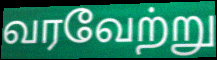
வரவேற்று